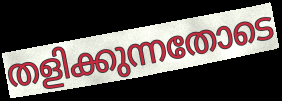
തളിക്കുന്നതോടെ